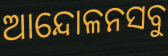
ଆନ୍ଦୋଳନସବୁ